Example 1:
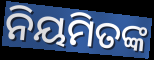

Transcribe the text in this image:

ନିୟମିତଙ୍କ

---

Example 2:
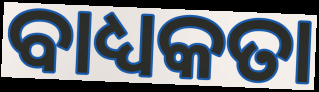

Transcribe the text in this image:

ବାଧ୍ୟକତା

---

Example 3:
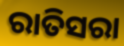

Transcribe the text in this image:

ରାତିସରା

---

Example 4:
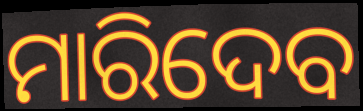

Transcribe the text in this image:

ମାରିଦେବ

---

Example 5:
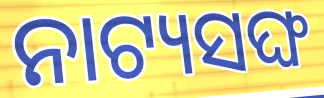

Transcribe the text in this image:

ନାଟ୍ୟସଙ୍ଘ